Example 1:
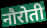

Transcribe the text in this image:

नौरोती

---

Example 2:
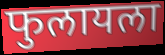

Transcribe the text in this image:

फुलायला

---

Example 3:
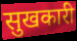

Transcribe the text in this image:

सुखकारी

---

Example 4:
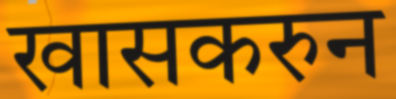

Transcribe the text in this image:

खासकरुन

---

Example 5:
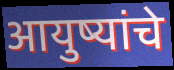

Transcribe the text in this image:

आयुष्यांचे